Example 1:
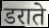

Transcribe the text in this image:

डराते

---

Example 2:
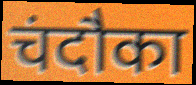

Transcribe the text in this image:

चंदौका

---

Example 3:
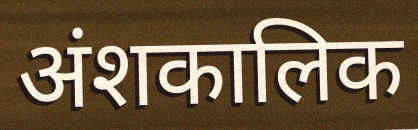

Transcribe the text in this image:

अंशकालिक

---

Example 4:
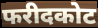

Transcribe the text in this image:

फरीदकोट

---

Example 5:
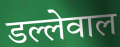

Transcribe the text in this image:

डल्लेवाल